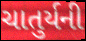
ચાતુર્યની